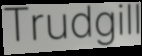
Trudgill